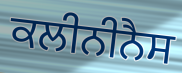
ਕਲੀਨੀਨੈਸ